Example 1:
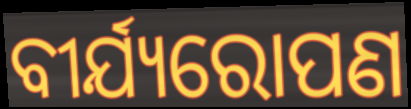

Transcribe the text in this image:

ବୀର୍ଯ୍ୟରୋପଣ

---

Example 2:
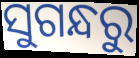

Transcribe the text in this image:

ସୁଗନ୍ଧରୁ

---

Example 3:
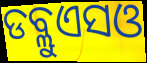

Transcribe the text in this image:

ଡବ୍ଲୁଏସଓ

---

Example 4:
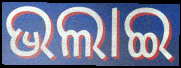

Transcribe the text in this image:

ଭଲାଇ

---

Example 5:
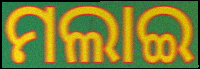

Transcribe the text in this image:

ମଲାଇ